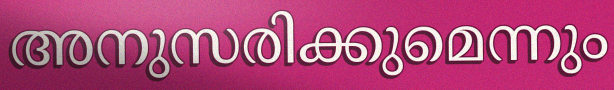
അനുസരിക്കുമെന്നും